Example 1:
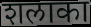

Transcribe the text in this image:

शलाका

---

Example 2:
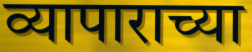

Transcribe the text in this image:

व्यापाराच्या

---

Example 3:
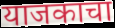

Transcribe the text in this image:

याजकाचा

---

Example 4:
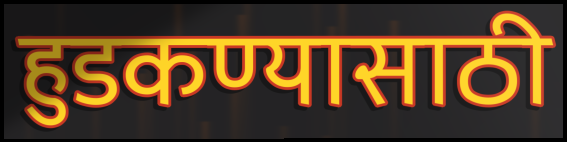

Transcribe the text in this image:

हुडकण्यासाठी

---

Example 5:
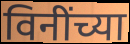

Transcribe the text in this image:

विनींच्या